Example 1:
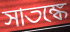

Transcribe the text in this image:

সাতঙ্কে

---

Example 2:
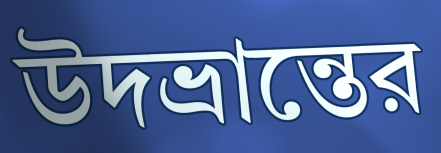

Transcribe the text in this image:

উদভ্রান্তের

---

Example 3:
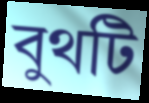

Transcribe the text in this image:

বুথটি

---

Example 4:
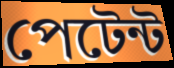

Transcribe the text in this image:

পেটেন্ট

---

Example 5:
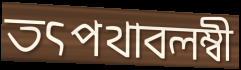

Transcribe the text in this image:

তৎপথাবলম্বী